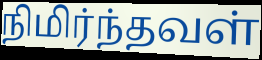
நிமிர்ந்தவள்